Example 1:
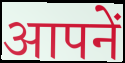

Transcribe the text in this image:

आपनें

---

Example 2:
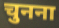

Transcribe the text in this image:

चुनना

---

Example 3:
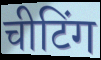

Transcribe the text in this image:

चीटिंग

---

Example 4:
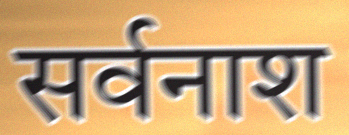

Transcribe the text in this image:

सर्वनाश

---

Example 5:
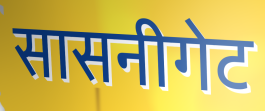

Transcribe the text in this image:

सासनीगेट